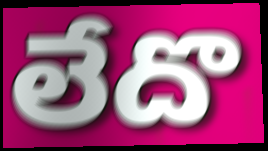
లేదొ